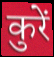
कुरें